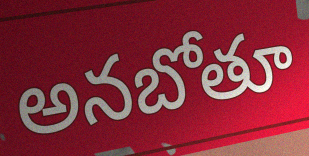
అనబోతూ